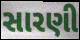
સારણી